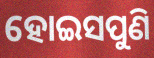
ହୋଇସପୁଣି